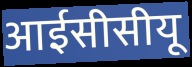
आईसीसीयू